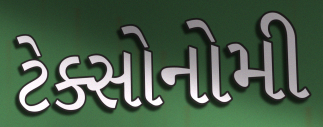
ટેક્સોનોમી